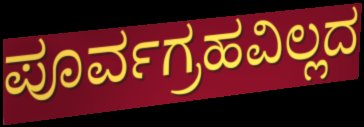
ಪೂರ್ವಗ್ರಹವಿಲ್ಲದ